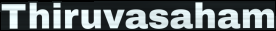
Thiruvasaham